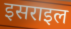
इसराइल